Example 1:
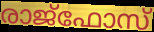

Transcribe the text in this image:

രാജ്ഫോസ്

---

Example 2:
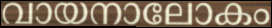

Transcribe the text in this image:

വായനാലോകം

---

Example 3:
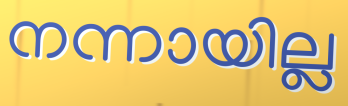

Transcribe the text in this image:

നന്നായില്ല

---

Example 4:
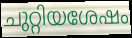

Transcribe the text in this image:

ചുറ്റിയശേഷം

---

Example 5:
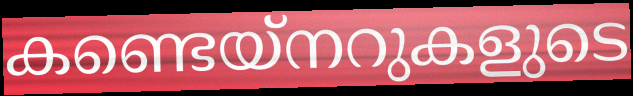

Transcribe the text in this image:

കണ്ടെയ്നറുകളുടെ